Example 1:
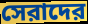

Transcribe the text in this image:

সেরাদের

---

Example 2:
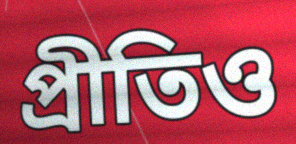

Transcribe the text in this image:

প্রীতিও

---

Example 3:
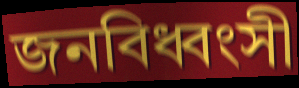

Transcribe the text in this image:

জনবিধ্বংসী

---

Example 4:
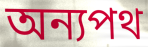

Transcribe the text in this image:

অন্যপথ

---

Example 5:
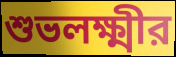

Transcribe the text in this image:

শুভলক্ষ্মীর